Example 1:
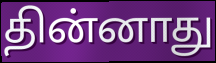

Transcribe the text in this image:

தின்னாது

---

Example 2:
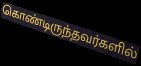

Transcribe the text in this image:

கொண்டிருந்தவர்களில்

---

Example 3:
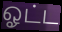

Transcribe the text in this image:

ஓட்ட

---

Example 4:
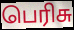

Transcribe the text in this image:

பெரிசு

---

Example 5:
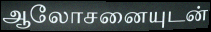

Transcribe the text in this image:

ஆலோசனையுடன்